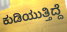
ಕುಡಿಯುತ್ತಿದ್ದೆ